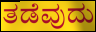
ತಡೆವುದು